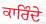
ਕਾਰਿੰਦੇ